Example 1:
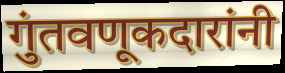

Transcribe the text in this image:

गुंतवणूकदारांनी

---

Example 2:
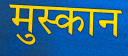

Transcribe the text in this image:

मुस्कान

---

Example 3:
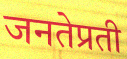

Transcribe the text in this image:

जनतेप्रती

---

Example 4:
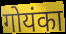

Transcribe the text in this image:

गोयंका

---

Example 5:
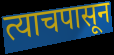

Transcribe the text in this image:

त्याचपासून